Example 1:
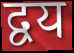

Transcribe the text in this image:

द्वय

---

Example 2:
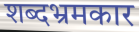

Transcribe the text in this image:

शब्दभ्रमकार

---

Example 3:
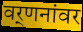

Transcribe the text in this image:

वर्णनांवर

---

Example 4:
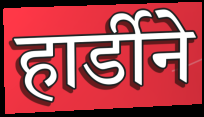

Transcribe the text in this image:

हार्डीने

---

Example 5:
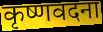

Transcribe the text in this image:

कृष्णवदना